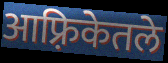
आफ़्रिकेतले